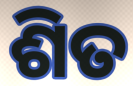
ଶିତ